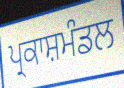
ਪ੍ਰਕਾਸ਼ਮੰਡਲ